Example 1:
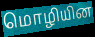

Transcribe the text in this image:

மொழியின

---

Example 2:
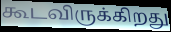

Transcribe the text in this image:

கூடவிருக்கிறது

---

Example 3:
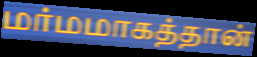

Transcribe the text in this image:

மர்மமாகத்தான்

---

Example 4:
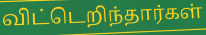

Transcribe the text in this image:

விட்டெறிந்தார்கள்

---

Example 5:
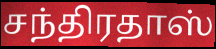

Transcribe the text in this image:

சந்திரதாஸ்